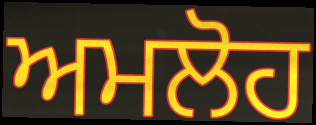
ਅਮਲੋਹ